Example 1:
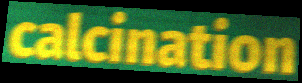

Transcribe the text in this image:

calcination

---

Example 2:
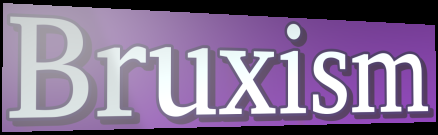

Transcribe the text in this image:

Bruxism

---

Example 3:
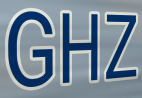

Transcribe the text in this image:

GHZ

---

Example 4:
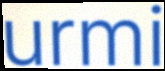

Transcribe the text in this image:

urmi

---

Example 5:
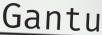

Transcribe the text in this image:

Gantu